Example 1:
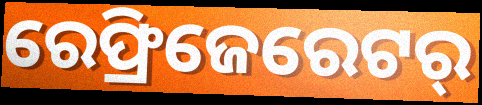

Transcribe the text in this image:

ରେଫ୍ରିଜେରେଟର୍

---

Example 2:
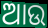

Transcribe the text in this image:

ଆଉ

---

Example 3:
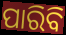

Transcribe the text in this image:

ପାରିବି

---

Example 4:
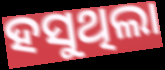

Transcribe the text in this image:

ହସୁଥିଲା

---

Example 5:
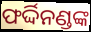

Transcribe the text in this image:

ଫର୍ଦ୍ଦିନଣ୍ଡଙ୍କ